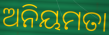
ଅନିୟମତା